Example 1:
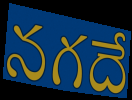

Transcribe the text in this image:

నగదే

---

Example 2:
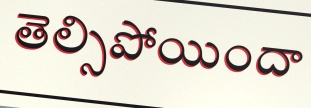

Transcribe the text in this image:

తెల్సిపోయిందా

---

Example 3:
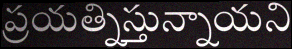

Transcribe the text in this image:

ప్రయత్నిస్తున్నాయని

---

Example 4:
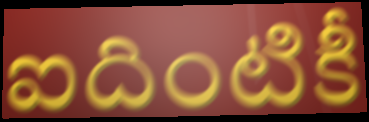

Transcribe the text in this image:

ఐదింటికీ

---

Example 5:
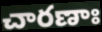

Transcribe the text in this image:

చారణాః